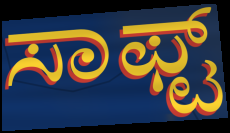
ಸಾಫ್ಟ್